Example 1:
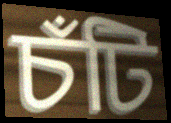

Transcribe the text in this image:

চঁটি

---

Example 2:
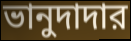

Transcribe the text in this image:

ভানুদাদার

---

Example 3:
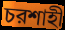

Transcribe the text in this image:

চরশাহী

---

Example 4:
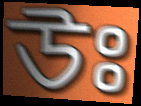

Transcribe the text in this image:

উঃ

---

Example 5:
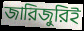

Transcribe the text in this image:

জারিজুরিই